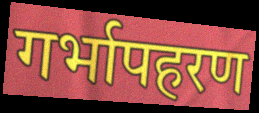
गर्भापहरण